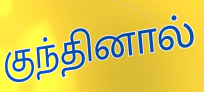
குந்தினால்